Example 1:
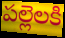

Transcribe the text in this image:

పల్లెలకి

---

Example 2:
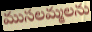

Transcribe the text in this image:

ముసలమ్మలను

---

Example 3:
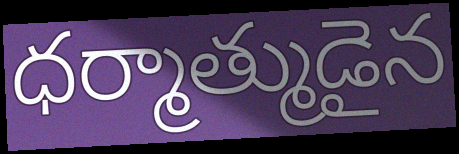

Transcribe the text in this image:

ధర్మాత్ముడైన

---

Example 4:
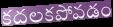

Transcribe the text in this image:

కదలకపోవడం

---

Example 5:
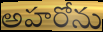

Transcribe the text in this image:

అహరోను